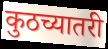
कुठच्यातरी